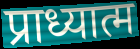
प्राध्यात्म